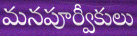
మనపూర్వీకులు